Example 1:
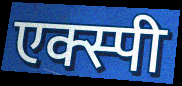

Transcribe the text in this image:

एक्स्पी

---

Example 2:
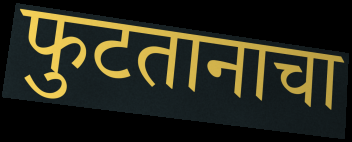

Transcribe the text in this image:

फुटतानाचा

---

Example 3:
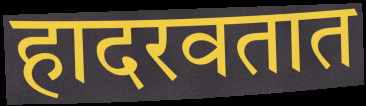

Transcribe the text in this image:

हादरवतात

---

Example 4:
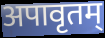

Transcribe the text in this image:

अपावृतम्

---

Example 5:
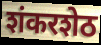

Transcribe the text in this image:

शंकरशेठ